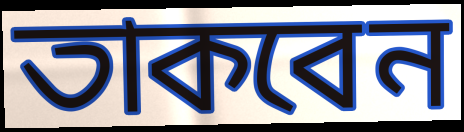
তাকবেন